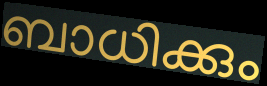
ബാധിക്കും